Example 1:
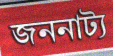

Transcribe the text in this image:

জননাট্য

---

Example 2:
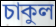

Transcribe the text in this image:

চাকুল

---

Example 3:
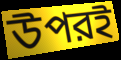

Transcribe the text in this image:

উপরই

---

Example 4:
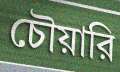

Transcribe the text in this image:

চৌয়ারি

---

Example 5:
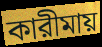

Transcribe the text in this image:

কারীমায়